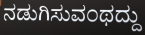
ನಡುಗಿಸುವಂಥದ್ದು